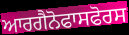
ਆਰਗੈਨੋਫਾਸਫੋਰਸ